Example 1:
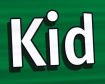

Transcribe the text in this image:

Kid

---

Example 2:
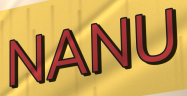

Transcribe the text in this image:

NANU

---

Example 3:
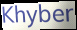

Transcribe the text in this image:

Khyber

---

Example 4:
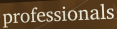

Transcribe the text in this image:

professionals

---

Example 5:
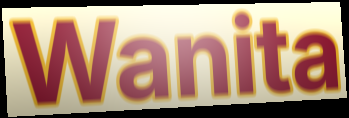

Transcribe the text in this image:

Wanita